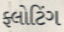
ફ્લોટિંગ